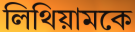
লিথিয়ামকে